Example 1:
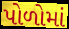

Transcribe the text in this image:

પોળોમાં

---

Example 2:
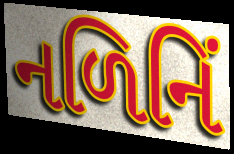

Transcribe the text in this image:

નળિનિં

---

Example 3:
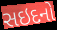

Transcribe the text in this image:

સઇદનો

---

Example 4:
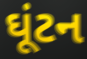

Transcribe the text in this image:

ઘૂંટન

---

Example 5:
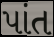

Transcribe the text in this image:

પાંત